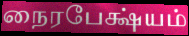
நைரபேக்ஷ்யம்